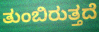
ತುಂಬಿರುತ್ತದೆ